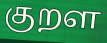
குறள